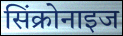
सिंक्रोनाइज